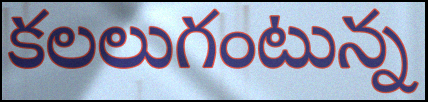
కలలుగంటున్న